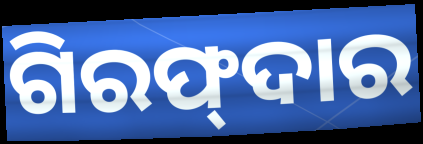
ଗିରଫ୍‍ଦାର